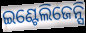
ଇଣ୍ଟେଲିଜେନ୍ସି